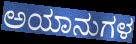
ಅಯಾನುಗಳ